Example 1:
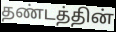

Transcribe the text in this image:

தண்டத்தின்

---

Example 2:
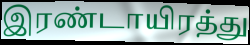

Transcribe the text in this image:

இரண்டாயிரத்து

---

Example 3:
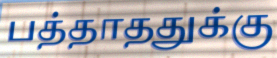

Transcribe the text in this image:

பத்தாததுக்கு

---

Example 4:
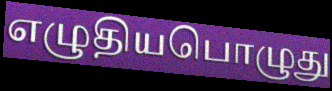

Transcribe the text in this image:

எழுதியபொழுது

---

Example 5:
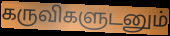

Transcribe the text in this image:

கருவிகளுடனும்